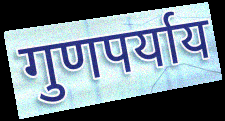
गुणपर्याय